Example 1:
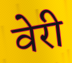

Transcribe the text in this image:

वेरी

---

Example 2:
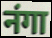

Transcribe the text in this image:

नंगा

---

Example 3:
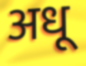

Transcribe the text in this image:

अधू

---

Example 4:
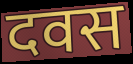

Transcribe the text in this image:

दवस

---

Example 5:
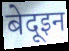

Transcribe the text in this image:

बेदूइन